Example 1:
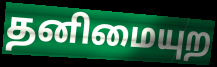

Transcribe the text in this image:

தனிமையுற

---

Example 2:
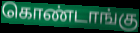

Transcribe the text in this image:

கொண்டாங்கு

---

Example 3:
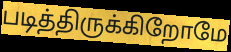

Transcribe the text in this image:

படித்திருக்கிறோமே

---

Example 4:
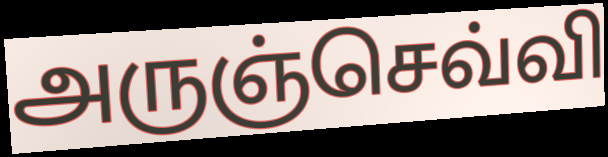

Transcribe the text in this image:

அருஞ்செவ்வி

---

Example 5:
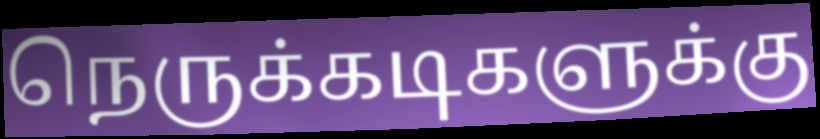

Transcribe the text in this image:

நெருக்கடிகளுக்கு